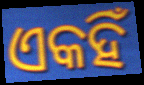
ଏକହିଁ